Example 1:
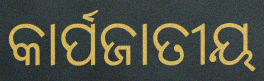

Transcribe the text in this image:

କାର୍ପଜାତୀୟ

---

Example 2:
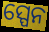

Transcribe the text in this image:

ସ୍ପେନ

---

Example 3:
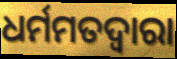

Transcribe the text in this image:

ଧର୍ମମତଦ୍ୱାରା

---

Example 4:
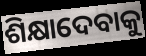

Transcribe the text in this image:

ଶିକ୍ଷାଦେବାକୁ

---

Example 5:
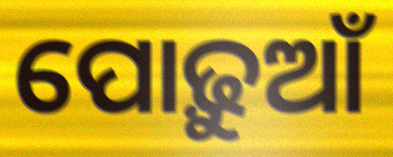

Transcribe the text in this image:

ପୋଢ଼ୁଆଁ